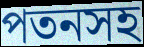
পতনসহ